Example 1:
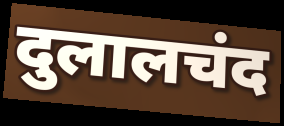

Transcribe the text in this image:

दुलालचंद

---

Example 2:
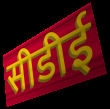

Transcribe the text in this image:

सीडीई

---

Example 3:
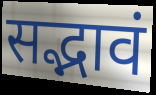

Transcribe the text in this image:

सद्भावं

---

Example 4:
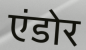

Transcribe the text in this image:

एंडोर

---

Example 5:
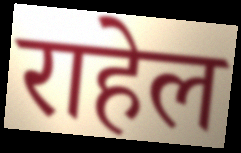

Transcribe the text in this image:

राहेल